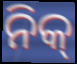
ନିକ୍